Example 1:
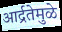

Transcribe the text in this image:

आर्द्रतेमुळे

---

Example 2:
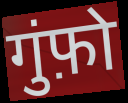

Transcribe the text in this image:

गुंफ़ो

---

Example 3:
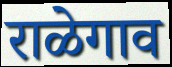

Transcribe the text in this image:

राळेगाव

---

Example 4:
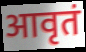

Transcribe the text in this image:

आवृतं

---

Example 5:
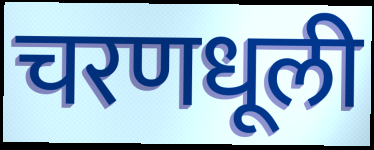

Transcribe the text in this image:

चरणधूली